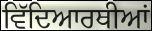
ਵਿੱਦਿਆਰਥੀਆਂ